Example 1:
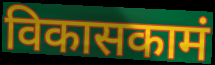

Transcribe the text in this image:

विकासकामं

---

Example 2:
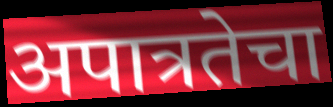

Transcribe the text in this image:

अपात्रतेचा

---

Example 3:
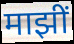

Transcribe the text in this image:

माझीं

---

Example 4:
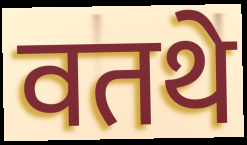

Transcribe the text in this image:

वतथे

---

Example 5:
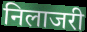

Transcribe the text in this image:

निलाजरी